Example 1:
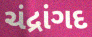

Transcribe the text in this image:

ચંદ્રાંગદ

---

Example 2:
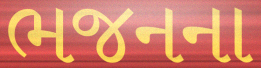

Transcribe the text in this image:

ભજનના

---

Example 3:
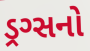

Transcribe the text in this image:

ડ્રગ્સનો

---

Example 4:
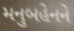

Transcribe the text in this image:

મનુબહેનને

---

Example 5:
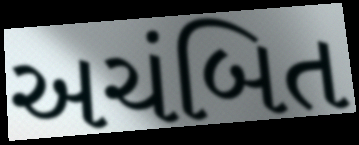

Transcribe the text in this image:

અચંબિત